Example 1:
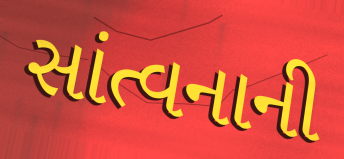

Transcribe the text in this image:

સાંત્વનાની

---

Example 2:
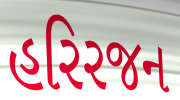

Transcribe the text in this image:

હરિરજન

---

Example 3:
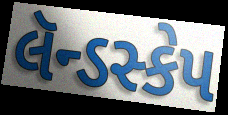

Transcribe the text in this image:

લૅન્ડસ્કેપ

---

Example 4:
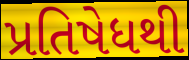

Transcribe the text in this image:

પ્રતિષેધથી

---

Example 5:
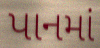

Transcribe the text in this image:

પાનમાં